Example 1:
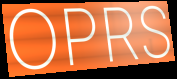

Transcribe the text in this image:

OPRS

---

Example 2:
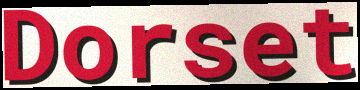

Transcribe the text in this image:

Dorset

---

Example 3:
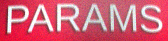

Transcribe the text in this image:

PARAMS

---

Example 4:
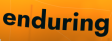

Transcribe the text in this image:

enduring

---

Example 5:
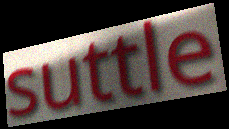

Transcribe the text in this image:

suttle